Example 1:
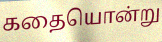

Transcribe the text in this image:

கதையொன்று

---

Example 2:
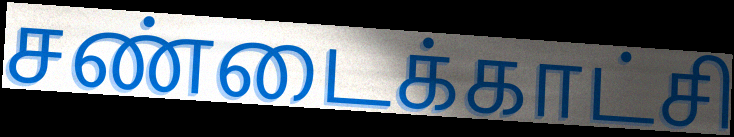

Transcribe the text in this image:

சண்டைக்காட்சி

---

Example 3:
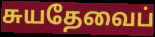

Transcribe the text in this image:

சுயதேவைப்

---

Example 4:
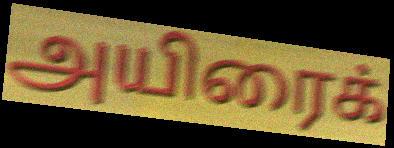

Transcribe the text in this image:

அயிரைக்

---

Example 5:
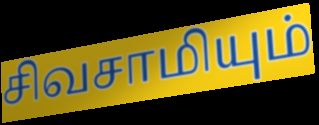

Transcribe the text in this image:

சிவசாமியும்